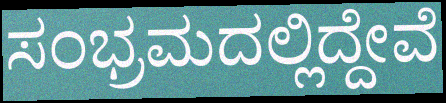
ಸಂಭ್ರಮದಲ್ಲಿದ್ದೇವೆ